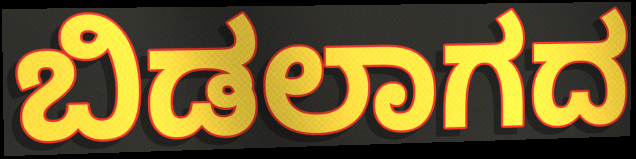
ಬಿಡಲಾಗದ